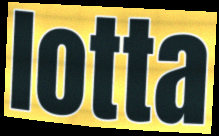
lotta